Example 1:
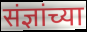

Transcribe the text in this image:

संज्ञांच्या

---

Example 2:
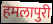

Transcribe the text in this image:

हमलापुरी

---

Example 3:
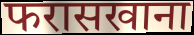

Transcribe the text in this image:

फरासखाना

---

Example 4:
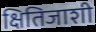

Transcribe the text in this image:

क्षितिजाशी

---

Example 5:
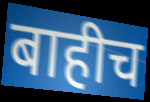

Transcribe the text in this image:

बाहीच